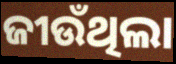
ଜୀଉଁଥିଲା